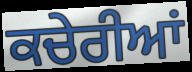
ਕਚੇਰੀਆਂ